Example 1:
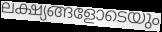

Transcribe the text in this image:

ലക്ഷ്യങ്ങളോടെയും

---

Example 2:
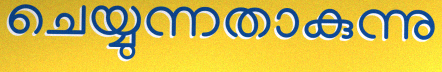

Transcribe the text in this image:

ചെയ്യുന്നതാകുന്നു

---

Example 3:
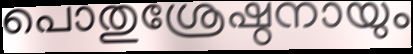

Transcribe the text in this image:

പൊതുശ്രേഷ്ഠനായും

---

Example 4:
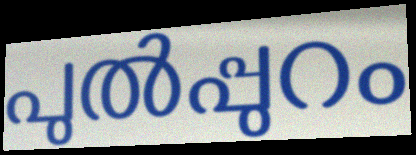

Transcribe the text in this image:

പുൽപ്പുറം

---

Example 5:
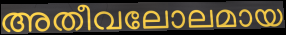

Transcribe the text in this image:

അതീവലോലമായ